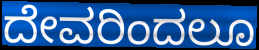
ದೇವರಿಂದಲೂ